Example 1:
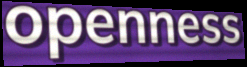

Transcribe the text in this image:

openness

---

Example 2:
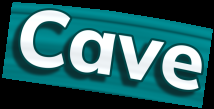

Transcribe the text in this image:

Cave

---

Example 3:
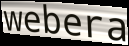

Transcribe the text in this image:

webera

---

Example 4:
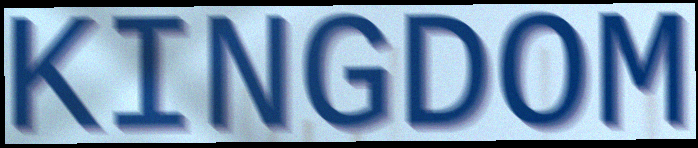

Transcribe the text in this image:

KINGDOM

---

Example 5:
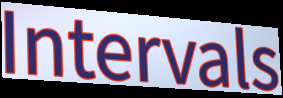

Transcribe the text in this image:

Intervals